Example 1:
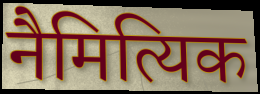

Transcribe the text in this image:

नैमित्यिक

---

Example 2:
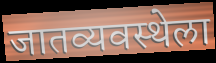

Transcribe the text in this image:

जातव्यवस्थेला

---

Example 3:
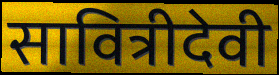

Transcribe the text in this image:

सावित्रीदेवी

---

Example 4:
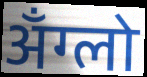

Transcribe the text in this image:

अँग्लो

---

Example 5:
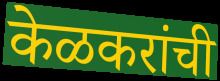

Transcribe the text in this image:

केळकरांची